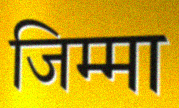
जिम्‍मा